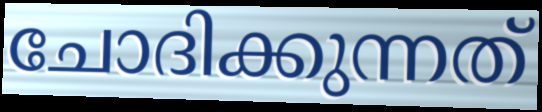
ചോദിക്കുന്നത്